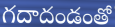
గదాదండంతో